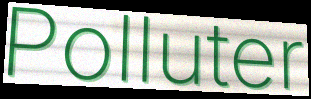
Polluter